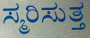
ಸ್ಮರಿಸುತ್ತ